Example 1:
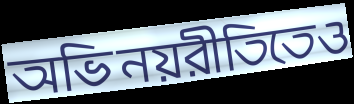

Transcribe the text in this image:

অভিনয়রীতিতেও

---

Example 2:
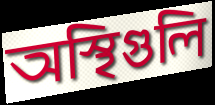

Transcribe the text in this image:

অস্থিগুলি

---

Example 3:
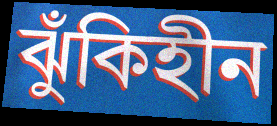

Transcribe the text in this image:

ঝুঁকিহীন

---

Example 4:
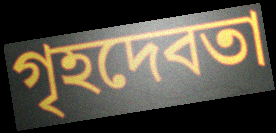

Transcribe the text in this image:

গৃহদেবতা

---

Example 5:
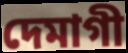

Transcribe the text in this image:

দেমাগী